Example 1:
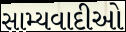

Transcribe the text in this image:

સામ્યવાદીઓ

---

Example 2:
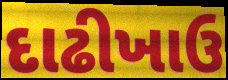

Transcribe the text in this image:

દાઢીખાઉ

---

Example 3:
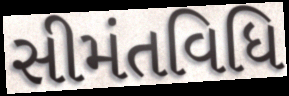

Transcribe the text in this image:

સીમંતવિધિ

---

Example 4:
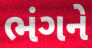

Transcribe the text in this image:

ભંગને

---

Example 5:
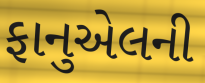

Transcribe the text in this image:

ફાનુએલની